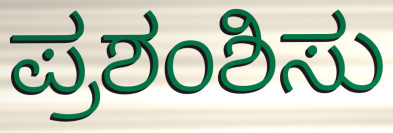
ಪ್ರಶಂಶಿಸು